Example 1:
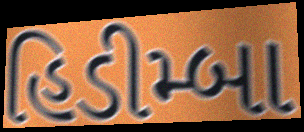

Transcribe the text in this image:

હિડીમ્બા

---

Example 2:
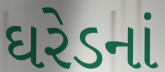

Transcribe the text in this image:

ઘરેડનાં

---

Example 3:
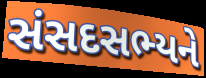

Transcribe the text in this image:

સંસદસભ્યને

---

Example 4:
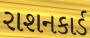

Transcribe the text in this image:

રાશનકાર્ડ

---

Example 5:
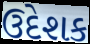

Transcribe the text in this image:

ઉદેશક